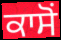
ਕਾਸੋਂ